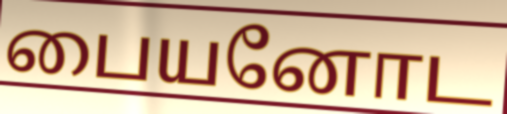
பையனோட